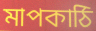
মাপকাঠি